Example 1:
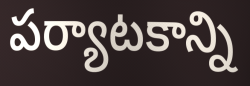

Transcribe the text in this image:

పర్యాటకాన్ని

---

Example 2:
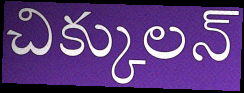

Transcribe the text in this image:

చిక్కులన్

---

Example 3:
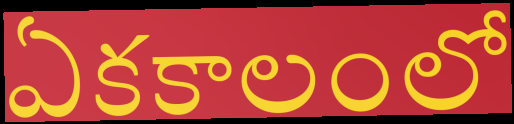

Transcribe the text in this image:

ఏకకాలంలో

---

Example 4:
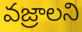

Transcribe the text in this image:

వజ్రాలని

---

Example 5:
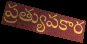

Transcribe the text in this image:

ప్రత్యుపకార